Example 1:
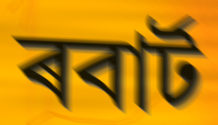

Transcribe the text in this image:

ৰবাৰ্ট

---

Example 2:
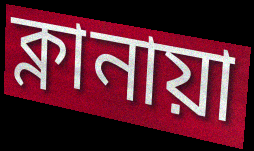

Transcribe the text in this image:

ক্নানায়া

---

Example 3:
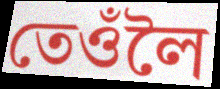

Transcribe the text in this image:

তেওঁলৈ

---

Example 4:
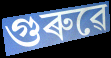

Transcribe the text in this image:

গুৰুৱে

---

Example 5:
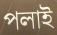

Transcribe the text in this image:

পলাই